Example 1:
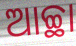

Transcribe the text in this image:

ଆଚ୍ଛା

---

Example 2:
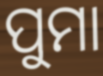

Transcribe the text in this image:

ପୁମା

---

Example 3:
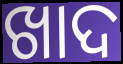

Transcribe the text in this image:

ଖାଦ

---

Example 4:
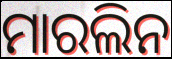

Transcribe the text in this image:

ମାରଲିନ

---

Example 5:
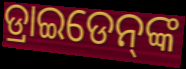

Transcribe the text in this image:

ଡ୍ରାଇଡେନ୍‌ଙ୍କ